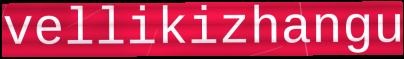
vellikizhangu